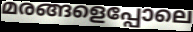
മരങ്ങളെപ്പോലെ